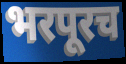
भरपूरच